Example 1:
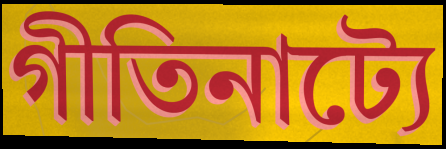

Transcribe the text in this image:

গীতিনাট্যে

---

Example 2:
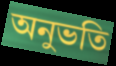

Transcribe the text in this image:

অনুভতি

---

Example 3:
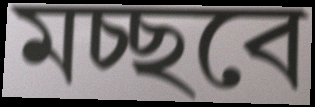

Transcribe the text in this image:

মচ্ছবে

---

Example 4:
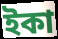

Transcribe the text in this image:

ইকা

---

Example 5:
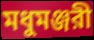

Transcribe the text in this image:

মধুমঞ্জরী